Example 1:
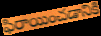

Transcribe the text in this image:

ఫిరాయించడానికి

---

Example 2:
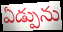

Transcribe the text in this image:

ఏడ్పును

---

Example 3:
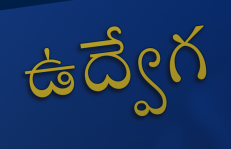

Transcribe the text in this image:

ఉద్వేగ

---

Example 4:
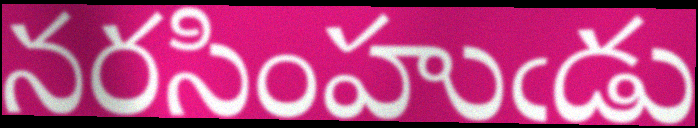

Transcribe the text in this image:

నరసింహుఁడు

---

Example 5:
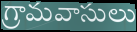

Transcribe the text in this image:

గ్రామవాసులు